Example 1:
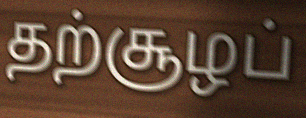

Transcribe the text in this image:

தற்சூழப்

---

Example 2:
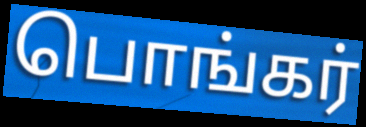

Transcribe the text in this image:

பொங்கர்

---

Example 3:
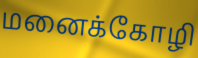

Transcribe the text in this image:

மனைக்கோழி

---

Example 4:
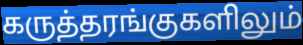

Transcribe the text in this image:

கருத்தரங்குகளிலும்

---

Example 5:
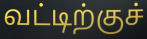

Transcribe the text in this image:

வட்டிற்குச்